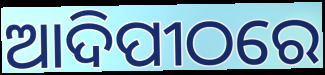
ଆଦିପୀଠରେ